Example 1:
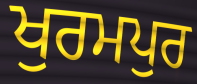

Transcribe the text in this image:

ਖੁਰਮਪੁਰ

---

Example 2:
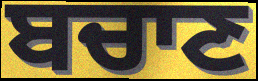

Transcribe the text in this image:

ਬਚਾਣ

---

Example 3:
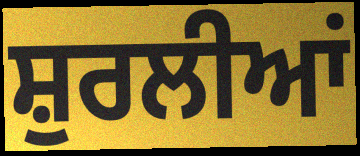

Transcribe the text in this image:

ਸ਼ੁਰਲੀਆਂ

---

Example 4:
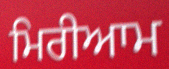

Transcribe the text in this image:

ਮਿਰੀਆਮ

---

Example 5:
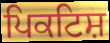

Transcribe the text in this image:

ਪਿਕਟਿਸ਼